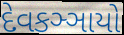
દેવકઞ્ઞાયો